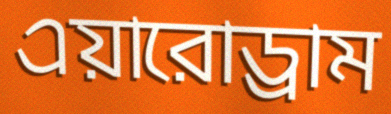
এয়ারোড্রাম